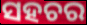
ସହଚର